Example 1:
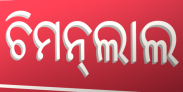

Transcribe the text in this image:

ଚିମନ୍‍ଲାଲ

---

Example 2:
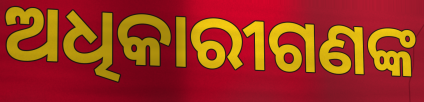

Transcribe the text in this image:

ଅଧିକାରୀଗଣଙ୍କ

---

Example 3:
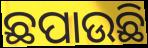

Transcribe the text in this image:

ଛପାଉଛି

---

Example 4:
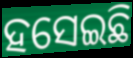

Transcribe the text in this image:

ହସେଇଛି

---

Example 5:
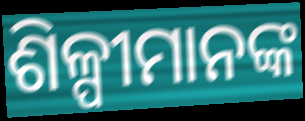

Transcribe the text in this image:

ଶିଳ୍ପୀମାନଙ୍କ